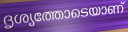
ദൃശ്യത്തോടെയാണ്